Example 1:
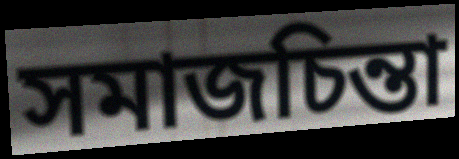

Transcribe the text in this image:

সমাজচিন্তা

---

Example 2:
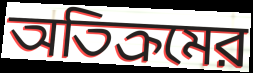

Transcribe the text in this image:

অতিক্রমের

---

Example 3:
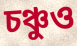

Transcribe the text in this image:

চঞ্চুও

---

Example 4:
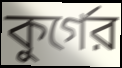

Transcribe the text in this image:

কুর্গের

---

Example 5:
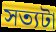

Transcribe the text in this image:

সত্যটা